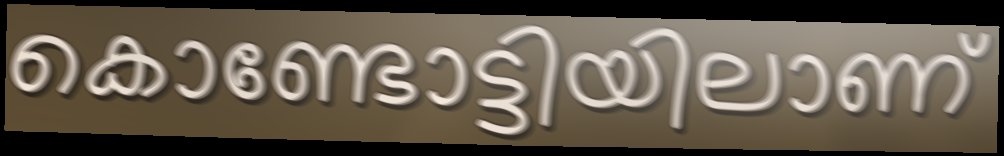
കൊണ്ടോട്ടിയിലാണ്